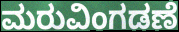
ಮರುವಿಂಗಡಣೆ